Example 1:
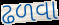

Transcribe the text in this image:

ઢળવા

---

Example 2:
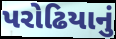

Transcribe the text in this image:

પરોઢિયાનું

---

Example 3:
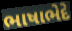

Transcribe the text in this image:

ભાષાભેદે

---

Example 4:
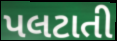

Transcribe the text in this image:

પલટાતી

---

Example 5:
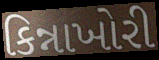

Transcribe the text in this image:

કિન્નાખોરી